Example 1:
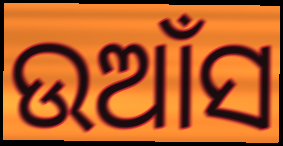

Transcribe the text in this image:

ଉଆଁସ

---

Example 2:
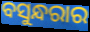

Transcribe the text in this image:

ବସୁନ୍ଧରାର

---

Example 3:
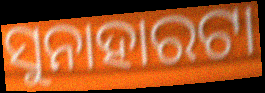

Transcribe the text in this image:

ସୁନାହାରଟା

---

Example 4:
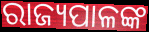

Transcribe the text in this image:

ରାଜ୍ୟପାଳଙ୍କ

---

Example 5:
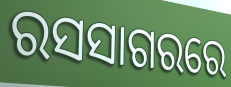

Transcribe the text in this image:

ରସସାଗରରେ